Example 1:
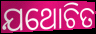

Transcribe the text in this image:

ଯଥୋଚିତ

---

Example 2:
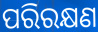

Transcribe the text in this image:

ପରିରକ୍ଷଣ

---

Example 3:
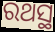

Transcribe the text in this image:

ରଥସ୍ଥ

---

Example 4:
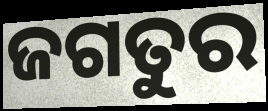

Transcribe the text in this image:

ଜଗତୁର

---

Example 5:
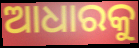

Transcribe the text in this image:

ଆଧାରକୁ